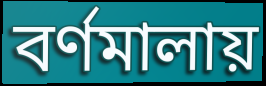
বর্ণমালায়